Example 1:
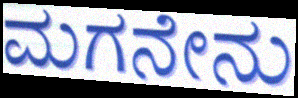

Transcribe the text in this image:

ಮಗನೇನು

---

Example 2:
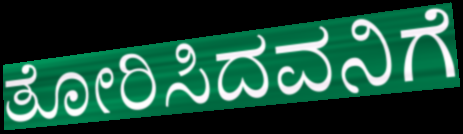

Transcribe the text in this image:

ತೋರಿಸಿದವನಿಗೆ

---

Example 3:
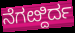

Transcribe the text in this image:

ನೆಗೞ್ದಿರ್ದ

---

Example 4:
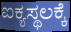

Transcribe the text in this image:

ಐಕ್ಯಸ್ಥಲಕ್ಕೆ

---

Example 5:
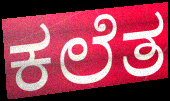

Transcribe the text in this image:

ಕಲೆತ